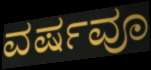
ವರ್ಷವೂ